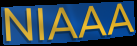
NIAAA